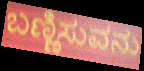
ಬಣ್ಣಿಸುವನು